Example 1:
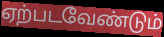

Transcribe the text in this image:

ஏற்படவேண்டும்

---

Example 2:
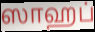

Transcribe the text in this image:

ஸாஹப்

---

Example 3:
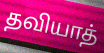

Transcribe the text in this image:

தவியாத்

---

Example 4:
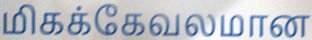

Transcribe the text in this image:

மிகக்கேவலமான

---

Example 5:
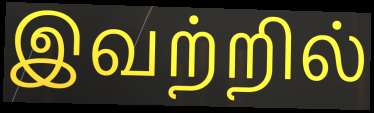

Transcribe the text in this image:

இவற்றில்